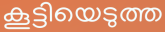
കൂട്ടിയെടുത്ത